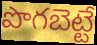
పొగబెట్టే